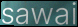
sawai